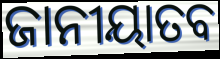
ଜାନୀୟାତବ